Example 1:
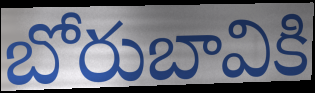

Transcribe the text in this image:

బోరుబావికి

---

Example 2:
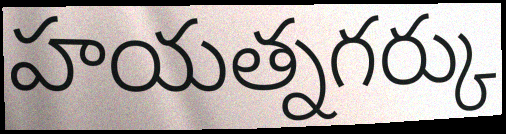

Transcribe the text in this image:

హయత్నగర్కు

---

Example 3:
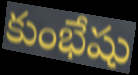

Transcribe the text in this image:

కుంభేషు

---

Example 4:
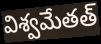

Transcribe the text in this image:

విశ్వమేతత్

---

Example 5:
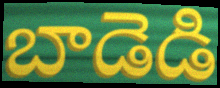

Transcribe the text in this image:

బాడెడి